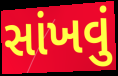
સાંખવું